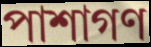
পাশাগণ